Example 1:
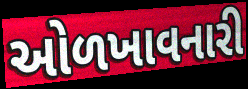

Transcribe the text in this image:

ઓળખાવનારી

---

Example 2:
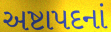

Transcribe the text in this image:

અષ્ટાપદનાં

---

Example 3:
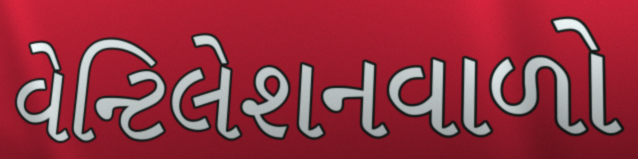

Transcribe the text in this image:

વેન્ટિલેશનવાળો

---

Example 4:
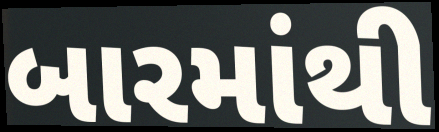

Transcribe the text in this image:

બારમાંથી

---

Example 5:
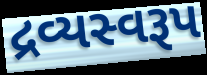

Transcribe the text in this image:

દ્રવ્યસ્વરૂપ